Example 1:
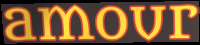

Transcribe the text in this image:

amour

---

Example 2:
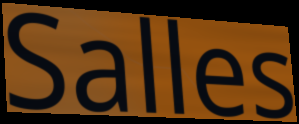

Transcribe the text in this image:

Salles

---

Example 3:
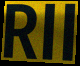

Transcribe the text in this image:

RII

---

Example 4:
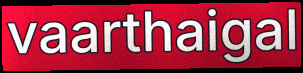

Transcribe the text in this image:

vaarthaigal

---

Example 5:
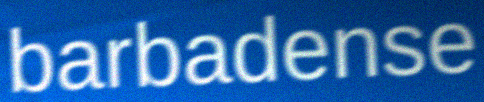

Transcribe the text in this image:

barbadense